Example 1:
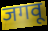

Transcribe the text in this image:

जगवू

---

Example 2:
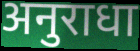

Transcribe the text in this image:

अनुराधा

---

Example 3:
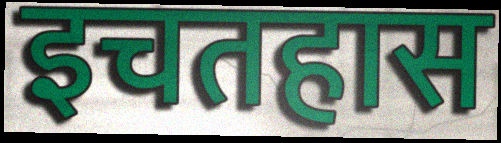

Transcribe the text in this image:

इचतहास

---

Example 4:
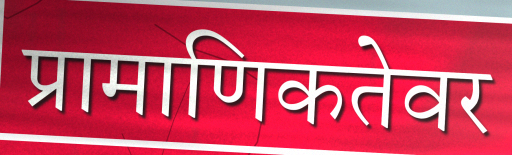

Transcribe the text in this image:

प्रामाणिकतेवर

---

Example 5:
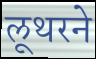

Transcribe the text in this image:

लूथरने